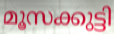
മൂസക്കുട്ടി